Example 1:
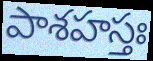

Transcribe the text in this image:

పాశహస్తః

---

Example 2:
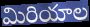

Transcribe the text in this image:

మిరియాల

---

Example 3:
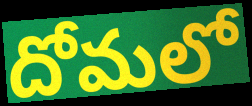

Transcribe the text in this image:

దోమలో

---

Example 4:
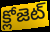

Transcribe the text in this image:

క్లోజెట్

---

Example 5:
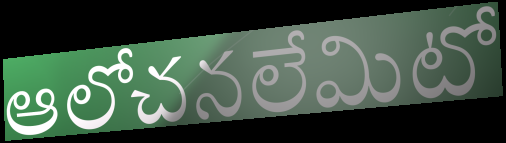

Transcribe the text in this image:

ఆలోచనలేమిటో